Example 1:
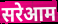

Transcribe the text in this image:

सरेआम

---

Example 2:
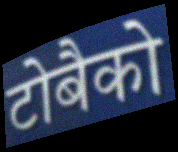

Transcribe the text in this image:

टोबैको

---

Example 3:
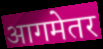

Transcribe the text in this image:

आगमेतर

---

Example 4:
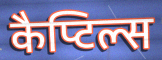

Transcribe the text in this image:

कैप्टिल्स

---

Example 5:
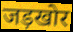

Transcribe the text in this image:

जड़खोर